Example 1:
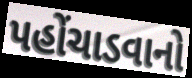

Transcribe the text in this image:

પહોંચાડવાનો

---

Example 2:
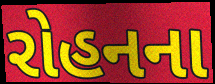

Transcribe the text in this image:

રોહનના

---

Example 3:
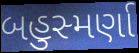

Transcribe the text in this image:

બહુસ્મર્ણા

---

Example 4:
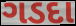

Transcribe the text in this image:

ગડદા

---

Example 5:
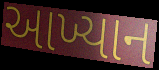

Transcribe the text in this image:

આખ્યાન